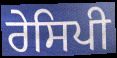
ਰੇਸਿਪੀ